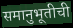
समानुभूतीची